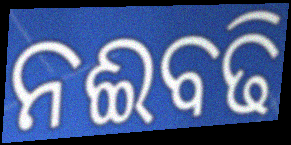
ନଈବଢି